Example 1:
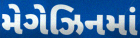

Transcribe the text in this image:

મેગેઝિનમાં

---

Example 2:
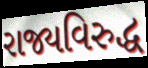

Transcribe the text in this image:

રાજ્યવિરુદ્ધ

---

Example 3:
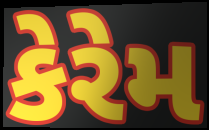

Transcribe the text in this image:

કેરેમ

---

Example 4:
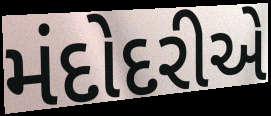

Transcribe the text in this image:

મંદોદરીએ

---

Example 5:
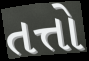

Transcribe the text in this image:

તત્તો